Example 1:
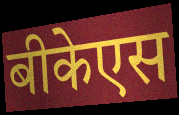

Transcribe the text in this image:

बीकेएस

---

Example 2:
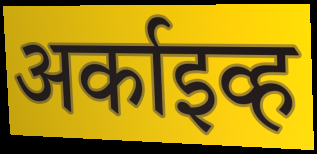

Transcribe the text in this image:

अर्काइव्ह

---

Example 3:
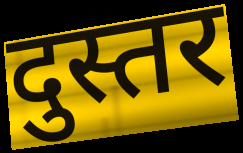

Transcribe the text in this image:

दुस्तर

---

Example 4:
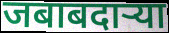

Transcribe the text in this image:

जबाबदार्‍या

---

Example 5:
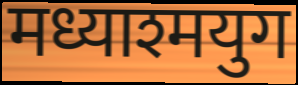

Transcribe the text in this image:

मध्याश्मयुग